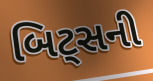
બિટ્સની